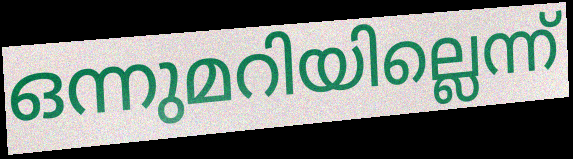
ഒന്നുമറിയില്ലെന്ന്